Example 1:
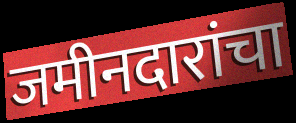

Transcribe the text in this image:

जमीनदारांचा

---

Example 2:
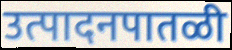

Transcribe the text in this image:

उत्पादनपातळी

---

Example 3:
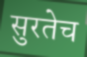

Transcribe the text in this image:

सुरतेच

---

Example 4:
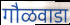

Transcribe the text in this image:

गौळवाडा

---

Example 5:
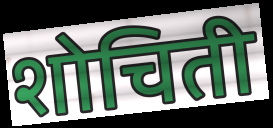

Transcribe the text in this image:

शोचिती